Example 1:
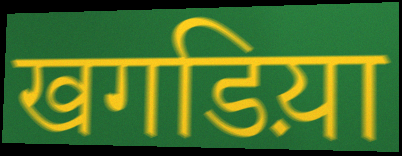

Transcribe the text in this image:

खगडिय़ा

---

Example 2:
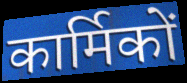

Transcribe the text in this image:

कार्मिकों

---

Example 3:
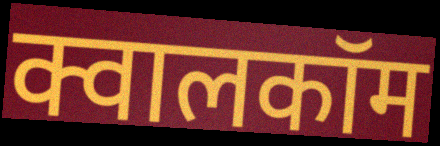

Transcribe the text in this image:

क्वालकॉम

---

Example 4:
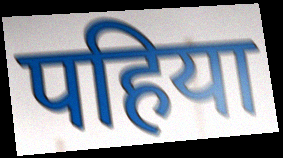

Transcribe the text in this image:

पहिया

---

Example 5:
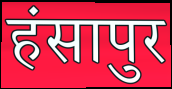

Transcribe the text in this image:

हंसापुर